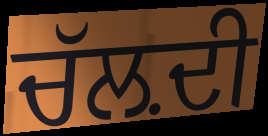
ਚੱਲ਼ਦੀ